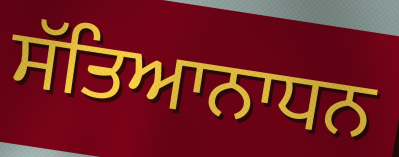
ਸੱਤਿਆਨਾਧਨ